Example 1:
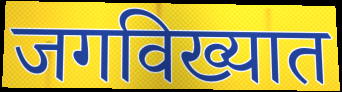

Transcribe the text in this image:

जगविख्यात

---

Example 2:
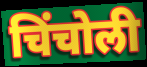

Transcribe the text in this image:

चिंचोली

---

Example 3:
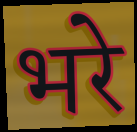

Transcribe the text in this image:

भरे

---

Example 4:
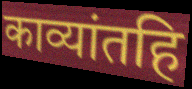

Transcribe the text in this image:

काव्यांतहि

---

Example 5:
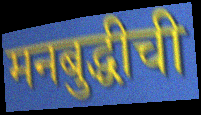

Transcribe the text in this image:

मनबुद्धीची